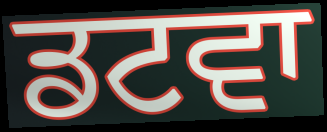
ਡਟਵਾ